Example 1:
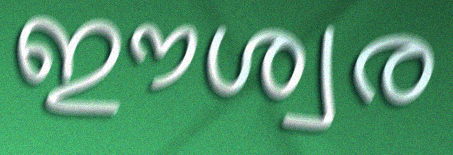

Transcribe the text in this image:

ഈശ്വര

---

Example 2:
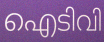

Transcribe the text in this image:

ഐടിവി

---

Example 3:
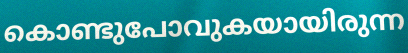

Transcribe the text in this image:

കൊണ്ടുപോവുകയായിരുന്ന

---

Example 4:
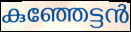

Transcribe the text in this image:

കുഞ്ഞേട്ടൻ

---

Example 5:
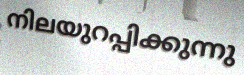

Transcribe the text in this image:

നിലയുറപ്പിക്കുന്നു